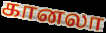
கானலா